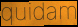
quidam